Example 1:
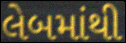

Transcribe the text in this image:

લેબમાંથી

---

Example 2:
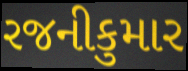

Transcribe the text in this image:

રજનીકુમાર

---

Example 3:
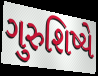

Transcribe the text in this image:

ગુરુશિષ્યે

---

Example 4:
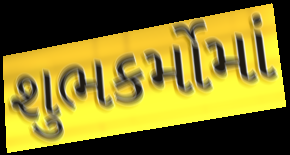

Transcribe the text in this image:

શુભકર્મોમાં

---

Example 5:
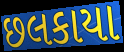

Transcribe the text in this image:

છલકાયા